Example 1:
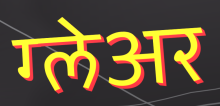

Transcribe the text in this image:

ग्लेअर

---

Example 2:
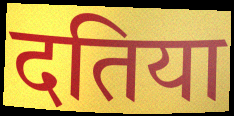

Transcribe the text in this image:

दतिया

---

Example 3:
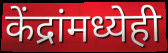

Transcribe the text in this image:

केंद्रांमध्येही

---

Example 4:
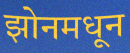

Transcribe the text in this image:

झोनमधून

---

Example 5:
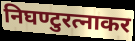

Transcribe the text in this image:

निघण्टुरत्नाकर